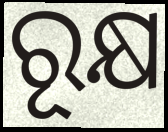
ରୂକ୍ଷ